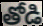
తోడి